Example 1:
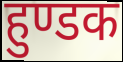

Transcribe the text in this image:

हुण्डक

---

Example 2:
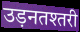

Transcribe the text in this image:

उड़नतश्तरी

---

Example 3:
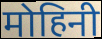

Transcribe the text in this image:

मोहिनी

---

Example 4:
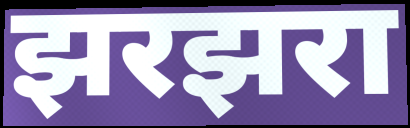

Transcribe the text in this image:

झरझरा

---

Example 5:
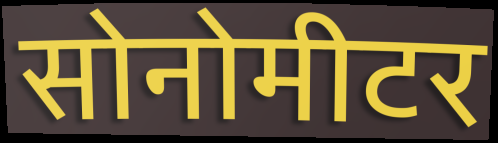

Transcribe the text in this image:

सोनोमीटर